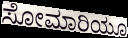
ಸೋಮಾರಿಯೂ